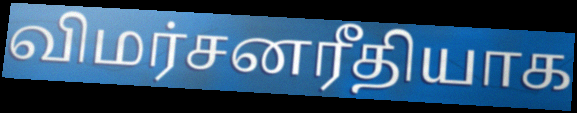
விமர்சனரீதியாக